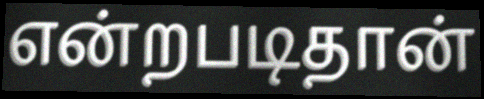
என்றபடிதான்